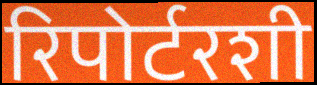
रिपोर्टरशी